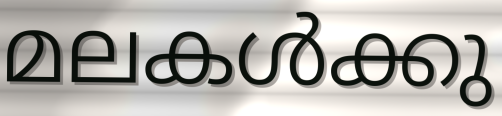
മലകൾക്കു